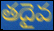
తదైవ